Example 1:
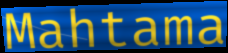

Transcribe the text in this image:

Mahtama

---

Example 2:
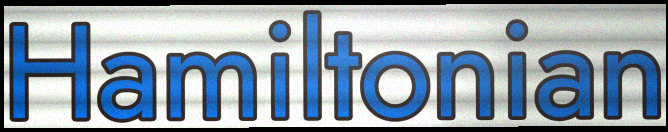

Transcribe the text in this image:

Hamiltonian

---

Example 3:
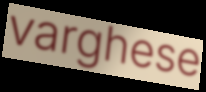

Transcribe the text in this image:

varghese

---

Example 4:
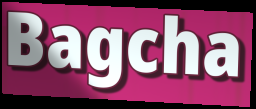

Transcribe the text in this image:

Bagcha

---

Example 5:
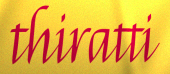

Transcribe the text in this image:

thiratti